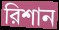
রিশান